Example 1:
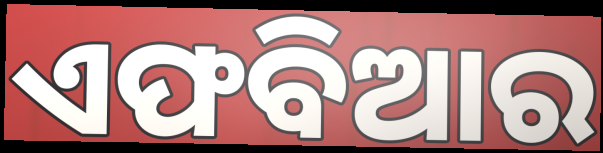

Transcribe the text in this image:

ଏଫବିଆର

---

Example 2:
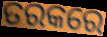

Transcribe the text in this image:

ତରକରେ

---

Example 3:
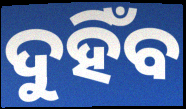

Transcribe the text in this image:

ଦୁହିଁବ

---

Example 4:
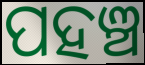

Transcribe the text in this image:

ପହଞ୍ଚ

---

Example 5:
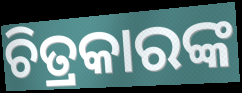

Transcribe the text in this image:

ଚିତ୍ରକାରଙ୍କ